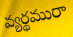
వ్యర్థమురా